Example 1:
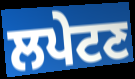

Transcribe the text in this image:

ਲਪੇਟਣ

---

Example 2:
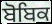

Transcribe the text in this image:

ਬੋਬਿਕ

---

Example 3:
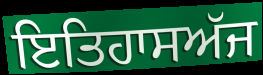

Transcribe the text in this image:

ਇਤਿਹਾਸਅੱਜ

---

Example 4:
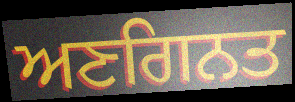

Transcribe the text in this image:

ਅਣਗਿਨਤ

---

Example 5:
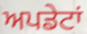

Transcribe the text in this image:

ਅਪਡੇਟਾਂ